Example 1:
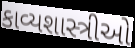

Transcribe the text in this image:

કાવ્યશાસ્ત્રીઓ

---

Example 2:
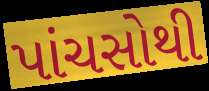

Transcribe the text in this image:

પાંચસોથી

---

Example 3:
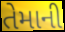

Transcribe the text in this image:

તેમાની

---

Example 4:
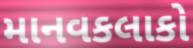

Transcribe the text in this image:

માનવકલાકો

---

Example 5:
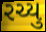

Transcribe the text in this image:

રચ્યુ